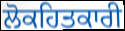
ਲੋਕਹਿਤਕਾਰੀ